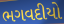
ભગવદીયો